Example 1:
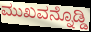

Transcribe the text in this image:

ಮುಖವನ್ನೊಡ್ಡಿ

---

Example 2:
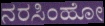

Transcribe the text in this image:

ನರಸಿಂಹೋ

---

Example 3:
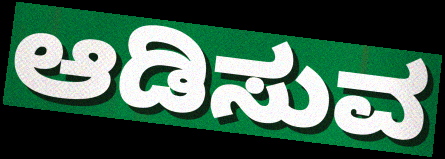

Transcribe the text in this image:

ಆಡಿಸುವ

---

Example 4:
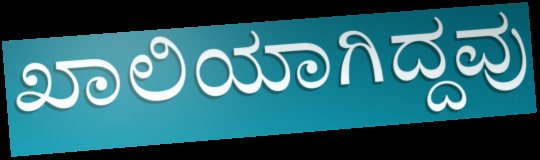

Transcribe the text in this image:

ಖಾಲಿಯಾಗಿದ್ದವು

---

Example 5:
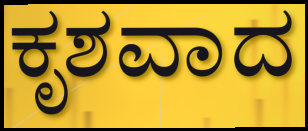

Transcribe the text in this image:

ಕೃಶವಾದ